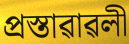
প্ৰস্তাৱাৱলী